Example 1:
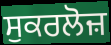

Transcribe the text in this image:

ਸੁਕਰਲੋਜ਼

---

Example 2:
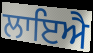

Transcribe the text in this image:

ਲਾਇਐ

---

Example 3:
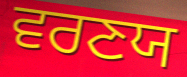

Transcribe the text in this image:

ਵਰਣਯ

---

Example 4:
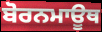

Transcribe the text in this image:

ਬੋਰਨਮਾਊਥ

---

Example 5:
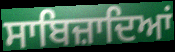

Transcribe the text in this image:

ਸਾਬਿਜ਼ਾਦਿਆਂ